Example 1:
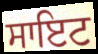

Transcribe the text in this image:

ਸਾਇਟ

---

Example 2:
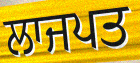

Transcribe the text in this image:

ਲਾਜਪਤ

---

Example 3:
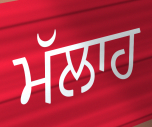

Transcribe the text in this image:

ਮੱਲਾਹ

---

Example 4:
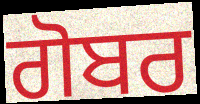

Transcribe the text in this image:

ਗੋਬਰ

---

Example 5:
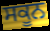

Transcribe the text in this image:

ਸਕੂਨ